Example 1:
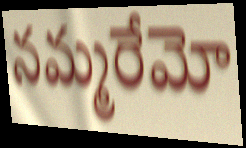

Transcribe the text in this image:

నమ్మరేమో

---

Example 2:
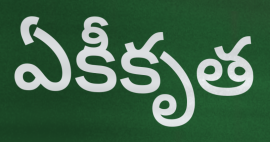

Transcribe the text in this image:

ఏకీకృత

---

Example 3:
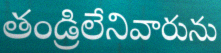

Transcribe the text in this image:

తండ్రిలేనివారును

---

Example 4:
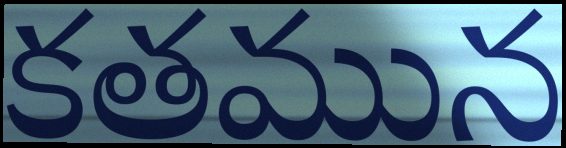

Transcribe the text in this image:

కతమున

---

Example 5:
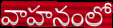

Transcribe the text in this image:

వాహనంలో